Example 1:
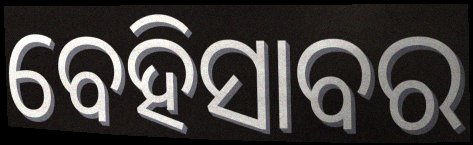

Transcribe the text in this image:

ବେହିସାବର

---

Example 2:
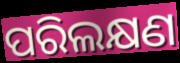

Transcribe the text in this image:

ପରିଲକ୍ଷଣ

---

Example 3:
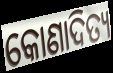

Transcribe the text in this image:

କୋଣାଦିତ୍ୟ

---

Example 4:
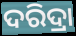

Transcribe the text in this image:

ଦରିଦ୍ରା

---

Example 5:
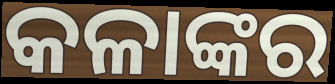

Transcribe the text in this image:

କଳାଙ୍କର